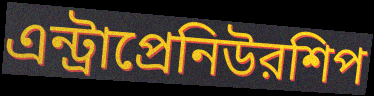
এন্ট্রাপ্রেনিউরশিপ